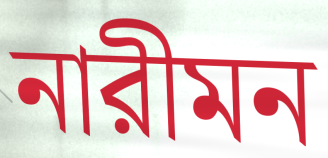
নারীমন